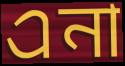
এনা